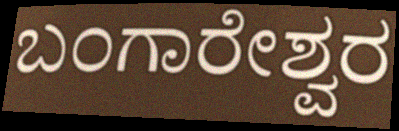
ಬಂಗಾರೇಶ್ವರ